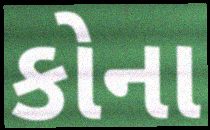
કોના